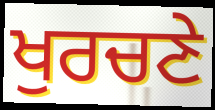
ਖੁਰਚਣੇ